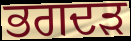
ਭਗਦੜ